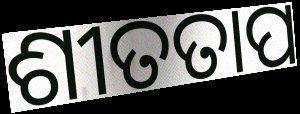
ଶୀତତାପ